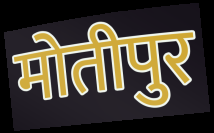
मोतीपुर